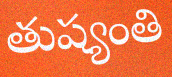
తుష్యంతి